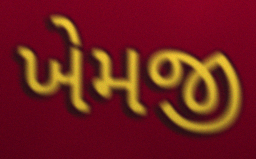
ખેમજી